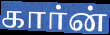
கார்ன்